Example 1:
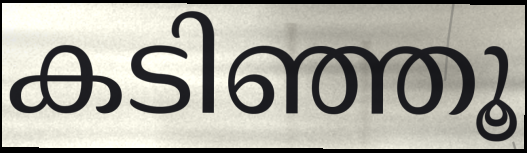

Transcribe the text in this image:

കടിഞ്ഞൂ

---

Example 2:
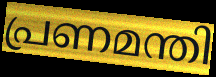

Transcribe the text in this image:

പ്രണമന്തി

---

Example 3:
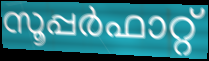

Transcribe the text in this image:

സൂപ്പർഫാറ്റ്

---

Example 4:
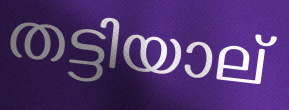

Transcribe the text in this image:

തട്ടിയാല്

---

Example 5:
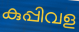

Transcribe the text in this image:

കുപ്പിവള